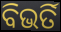
ବିଭର୍ତି